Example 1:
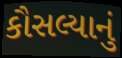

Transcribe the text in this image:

કૌસલ્યાનું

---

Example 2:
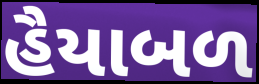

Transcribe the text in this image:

હૈયાબળ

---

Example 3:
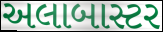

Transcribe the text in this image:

અલાબાસ્ટર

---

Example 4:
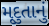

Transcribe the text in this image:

મૃદુતાનું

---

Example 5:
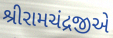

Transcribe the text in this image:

શ્રીરામચંદ્રજીએ